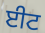
ਈਟ